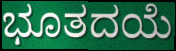
ಭೂತದಯೆ